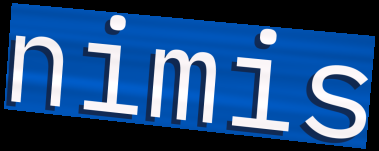
nimis